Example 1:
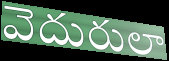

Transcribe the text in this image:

వెదురులా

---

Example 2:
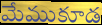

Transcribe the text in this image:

మేముకూడ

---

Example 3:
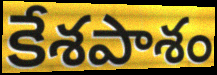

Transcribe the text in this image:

కేశపాశం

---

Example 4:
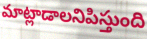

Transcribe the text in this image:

మాట్లాడాలనిపిస్తుంది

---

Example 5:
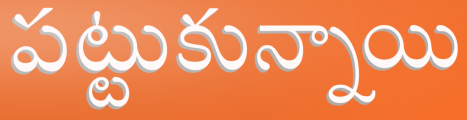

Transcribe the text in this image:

పట్టుకున్నాయి